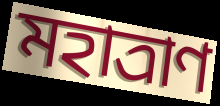
মহাত্রাণ